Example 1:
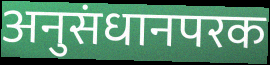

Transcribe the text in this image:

अनुसंधानपरक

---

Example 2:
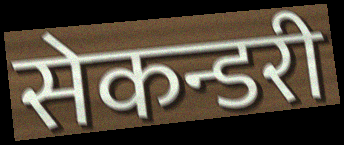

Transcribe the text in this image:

सेकन्डरी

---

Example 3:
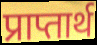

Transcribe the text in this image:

प्राप्तार्थ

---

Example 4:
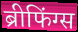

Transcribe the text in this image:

ब्रीफिंग्स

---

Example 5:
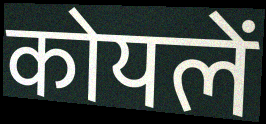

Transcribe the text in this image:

कोयलें